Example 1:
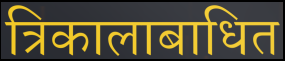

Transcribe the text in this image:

त्रिकालाबाधित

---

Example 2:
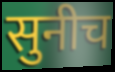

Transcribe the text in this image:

सुनीच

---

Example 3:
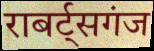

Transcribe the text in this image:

राबर्ट्सगंज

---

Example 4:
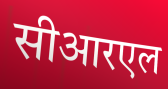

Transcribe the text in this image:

सीआरएल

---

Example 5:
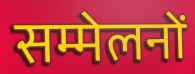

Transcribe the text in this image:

सम्‍मेलनों